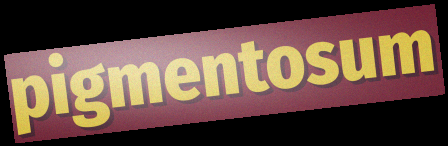
pigmentosum